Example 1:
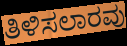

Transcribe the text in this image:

ತಿಳಿಸಲಾರವು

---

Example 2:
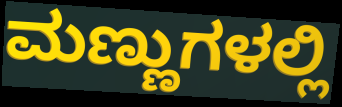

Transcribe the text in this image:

ಮಣ್ಣುಗಳಲ್ಲಿ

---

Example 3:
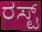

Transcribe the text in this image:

ರಸ್ಟ್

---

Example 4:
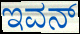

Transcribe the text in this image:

ಇವನ್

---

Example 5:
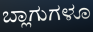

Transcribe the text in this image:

ಬ್ಲಾಗುಗಳೂ